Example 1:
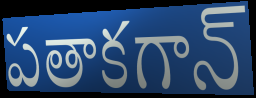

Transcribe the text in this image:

పతాకగాన్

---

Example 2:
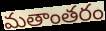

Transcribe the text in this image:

మతాంతరం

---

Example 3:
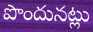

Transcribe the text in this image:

పొందునట్లు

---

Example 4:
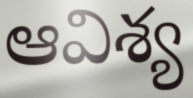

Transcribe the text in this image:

ఆవిశ్య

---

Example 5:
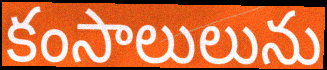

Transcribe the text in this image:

కంసాలులును